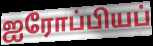
ஐரோப்பியப்